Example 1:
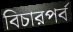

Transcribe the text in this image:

বিচারপর্ব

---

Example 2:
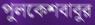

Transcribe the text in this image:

পুলকেশবাবুর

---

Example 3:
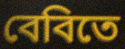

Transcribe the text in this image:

বেবিতে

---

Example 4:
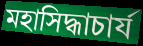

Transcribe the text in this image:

মহাসিদ্ধাচার্য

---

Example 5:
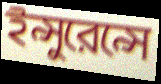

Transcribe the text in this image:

ইন্সুরেন্সে